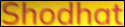
Shodhat